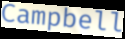
Campbell